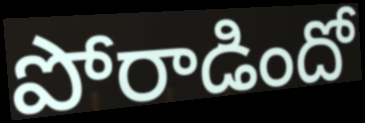
పోరాడిందో